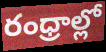
రంధ్రాల్లో